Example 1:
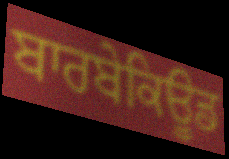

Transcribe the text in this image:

ਬਾਰਬੇਕਿਊਡ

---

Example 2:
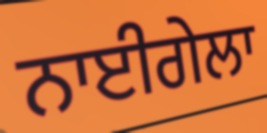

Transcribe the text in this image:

ਨਾਈਗੇਲਾ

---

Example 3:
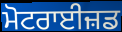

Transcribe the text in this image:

ਮੋਟਰਾਈਜ਼ਡ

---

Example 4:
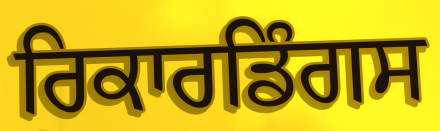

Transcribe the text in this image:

ਰਿਕਾਰਡਿੰਗਸ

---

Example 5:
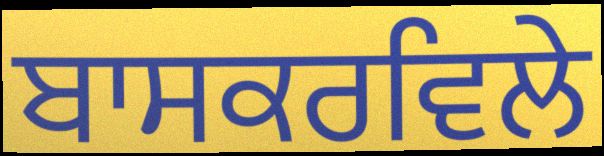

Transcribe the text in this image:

ਬਾਸਕਰਵਿਲੇ